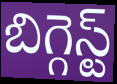
బిగ్గెస్ట్